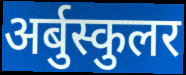
अर्बुस्कुलर